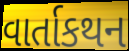
વાર્તાકથન